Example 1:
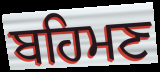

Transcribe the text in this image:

ਬਹਿਮਣ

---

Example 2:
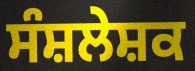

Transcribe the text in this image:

ਸੰਸ਼ਲੇਸ਼ਕ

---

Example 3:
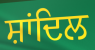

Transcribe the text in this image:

ਸ਼ਾਂਦਿਲ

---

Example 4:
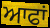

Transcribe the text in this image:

ਆਫਾਂ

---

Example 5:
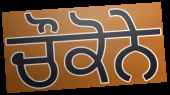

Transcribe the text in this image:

ਚੌਕੋਨੇ